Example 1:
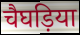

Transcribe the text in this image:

चैघड़िया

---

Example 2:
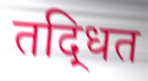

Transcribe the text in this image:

तद्धित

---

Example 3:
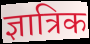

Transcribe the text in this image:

ज्ञात्रिक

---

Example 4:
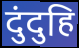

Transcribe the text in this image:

दुंदुहि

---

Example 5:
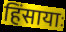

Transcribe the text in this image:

हिंसायाः